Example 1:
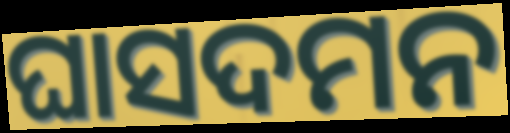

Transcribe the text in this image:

ଘାସଦମନ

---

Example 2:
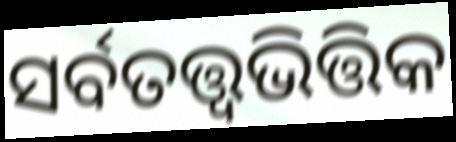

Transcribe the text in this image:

ସର୍ବତତ୍ତ୍ୱଭିତ୍ତିକ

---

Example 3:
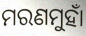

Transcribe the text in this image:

ମରଣମୁହାଁ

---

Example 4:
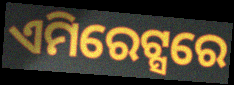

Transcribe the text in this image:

ଏମିରେଟ୍ସରେ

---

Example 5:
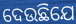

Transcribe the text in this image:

ଦେଉଛିଯେ